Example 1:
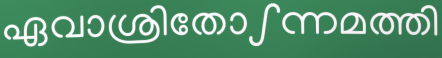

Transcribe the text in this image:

ഏവാശ്രിതോഽന്നമത്തി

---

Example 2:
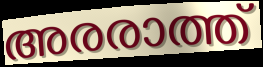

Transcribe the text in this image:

അരരാത്ത്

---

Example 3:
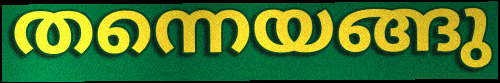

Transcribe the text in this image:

തന്നെയങ്ങു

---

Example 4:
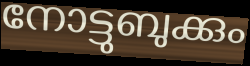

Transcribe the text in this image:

നോട്ടുബുക്കും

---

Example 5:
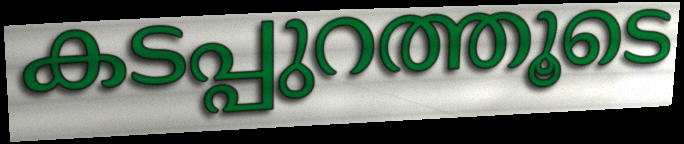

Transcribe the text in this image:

കടപ്പുറത്തൂടെ